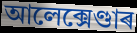
আলেক্সেণ্ডাৰ